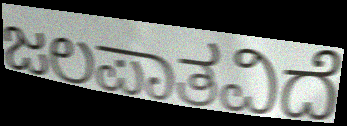
ಜಲಪಾತವಿದೆ